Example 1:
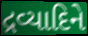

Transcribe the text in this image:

દ્રવ્યાદિને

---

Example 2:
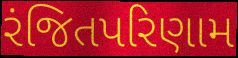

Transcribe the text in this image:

રંજિતપરિણામ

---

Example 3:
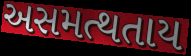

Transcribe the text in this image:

અસમત્થતાય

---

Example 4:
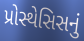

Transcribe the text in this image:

પ્રોસ્થેસિસનું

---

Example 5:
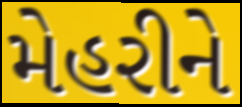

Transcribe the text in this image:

મેહરીને